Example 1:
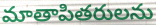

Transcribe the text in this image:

మాతాపితరులను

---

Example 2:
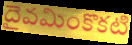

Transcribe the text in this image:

దైవమింకొకటి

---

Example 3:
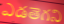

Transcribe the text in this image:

ఎడతెగని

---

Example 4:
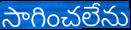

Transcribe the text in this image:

సాగించలేను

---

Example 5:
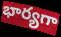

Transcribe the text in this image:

భార్యగా